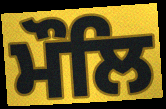
ਮੌਲਿ